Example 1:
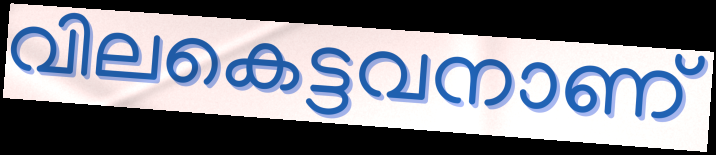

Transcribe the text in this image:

വിലകെട്ടവനാണ്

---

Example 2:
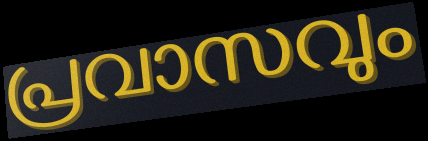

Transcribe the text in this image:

പ്രവാസവും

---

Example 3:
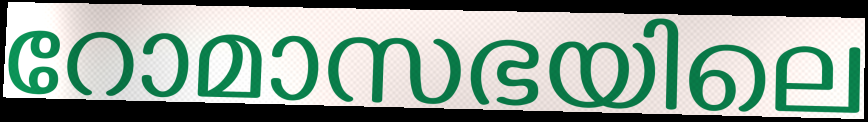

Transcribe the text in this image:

റോമാസഭയിലെ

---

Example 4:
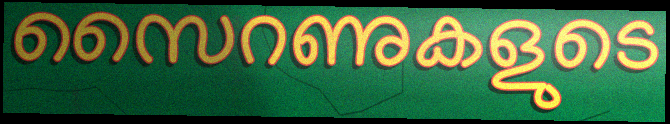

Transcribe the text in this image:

സൈറണുകളുടെ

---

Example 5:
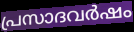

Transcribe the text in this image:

പ്രസാദവർഷം